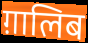
ग़ालिब